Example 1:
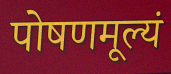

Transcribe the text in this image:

पोषणमूल्यं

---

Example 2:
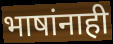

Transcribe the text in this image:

भाषांनाही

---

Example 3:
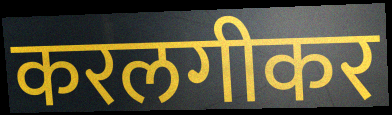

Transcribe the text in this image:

करलगीकर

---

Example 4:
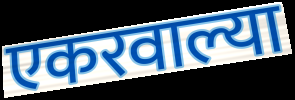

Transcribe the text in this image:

एकरवाल्या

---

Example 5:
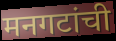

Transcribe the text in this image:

मनगटांची